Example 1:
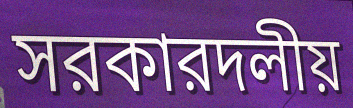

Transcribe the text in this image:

সরকারদলীয়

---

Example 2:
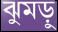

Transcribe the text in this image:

ঝুমড়ু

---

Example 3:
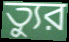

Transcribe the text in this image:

ত্যুর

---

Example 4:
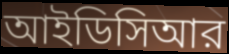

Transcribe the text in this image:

আইডিসিআর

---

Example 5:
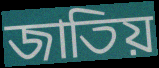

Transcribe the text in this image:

জাতিয়